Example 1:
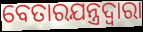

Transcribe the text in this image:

ବେତାରଯନ୍ତ୍ରଦ୍ୱାରା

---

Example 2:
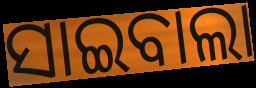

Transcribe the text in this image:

ସାଇବାଲା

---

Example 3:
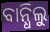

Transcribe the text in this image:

ବାନ୍ଧିଲୁ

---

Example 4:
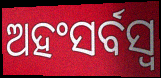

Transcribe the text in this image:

ଅହଂସର୍ବସ୍ୱ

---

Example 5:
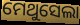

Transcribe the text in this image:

ମେଥୁସେଲା